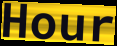
Hour